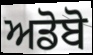
ਅਡੋਬੋ